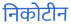
निकोटीन